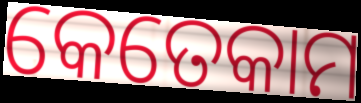
କେତେକାମ